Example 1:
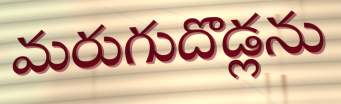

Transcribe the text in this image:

మరుగుదొడ్లను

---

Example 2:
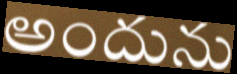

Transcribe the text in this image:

అందును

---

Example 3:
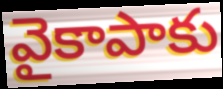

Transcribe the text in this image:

వైకాపాకు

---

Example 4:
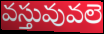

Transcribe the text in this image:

వస్తువువలె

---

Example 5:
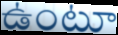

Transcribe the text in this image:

ఉంటూ